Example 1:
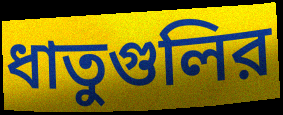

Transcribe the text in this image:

ধাতুগুলির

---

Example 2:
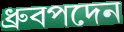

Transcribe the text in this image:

ধ্রুবপদেন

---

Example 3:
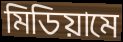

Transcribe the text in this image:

মিডিয়ামে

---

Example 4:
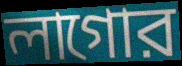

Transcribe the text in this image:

লাগোর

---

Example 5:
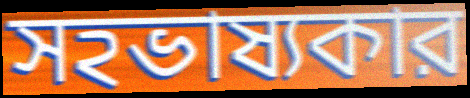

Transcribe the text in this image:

সহভাষ্যকার